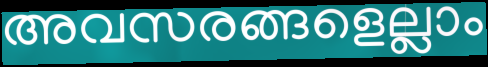
അവസരങ്ങളെല്ലാം